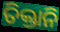
ତିକ୍ତାନି